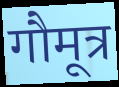
गौमूत्र